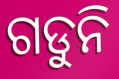
ଗଡୁନି